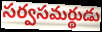
సర్వసమర్థుడు